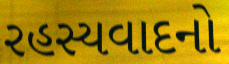
રહસ્યવાદનો